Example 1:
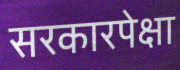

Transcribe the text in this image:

सरकारपेक्षा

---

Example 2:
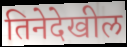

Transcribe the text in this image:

तिनेदेखील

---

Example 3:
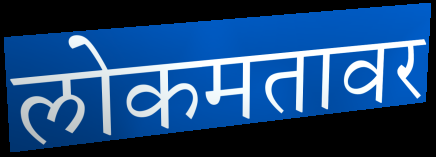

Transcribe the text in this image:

लोकमतावर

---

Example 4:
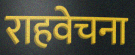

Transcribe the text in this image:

राहवेचना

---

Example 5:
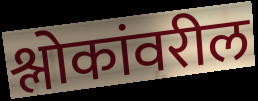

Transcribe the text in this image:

श्लोकांवरील